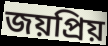
জয়প্রিয়